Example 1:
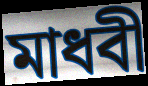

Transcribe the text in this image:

মাধবী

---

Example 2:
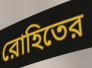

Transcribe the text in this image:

রোহিতের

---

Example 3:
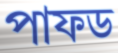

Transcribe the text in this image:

পাফড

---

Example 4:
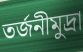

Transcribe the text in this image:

তর্জনীমুদ্রা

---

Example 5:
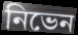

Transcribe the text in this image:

নিভেন